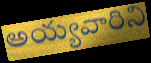
అయ్యవారిని